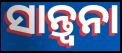
ସାନ୍ତ୍ବନା